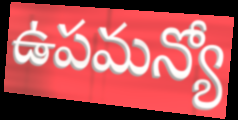
ఉపమన్యో